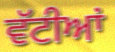
ਵੱਟੀਆਂ